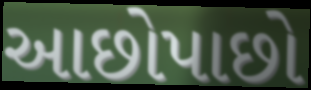
આછોપાછો